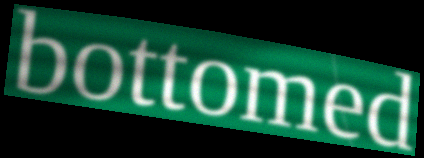
bottomed